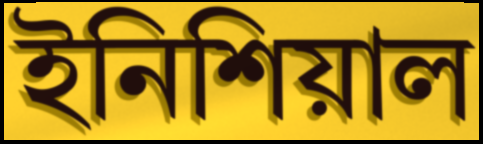
ইনিশিয়াল